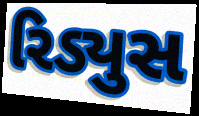
રિડ્યુસ